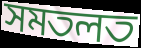
সমতলত